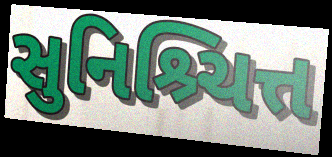
સુનિશ્ર્ચિત્ત